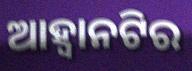
ଆହ୍ଵାନଟିର